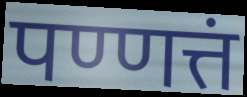
पण्णत्तं